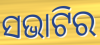
ସଭାଟିର